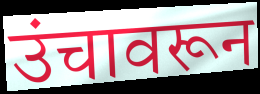
उंचावरून